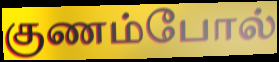
குணம்போல்